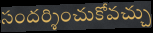
సందర్శించుకోవచ్చు